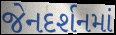
જેનદર્શનમાં